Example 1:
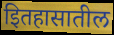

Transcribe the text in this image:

इितहासातील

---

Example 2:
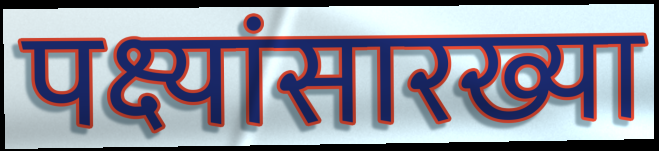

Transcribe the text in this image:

पक्ष्यांसारख्या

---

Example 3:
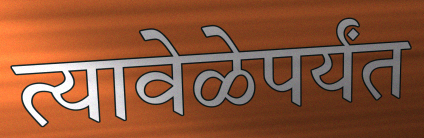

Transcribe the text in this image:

त्यावेळेपर्यंत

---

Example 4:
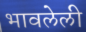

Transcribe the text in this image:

भावलेली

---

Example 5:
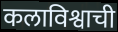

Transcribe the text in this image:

कलाविश्वाची